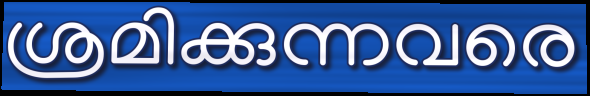
ശ്രമിക്കുന്നവരെ